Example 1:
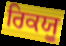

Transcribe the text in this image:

ਰਿਕਯੂ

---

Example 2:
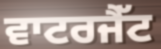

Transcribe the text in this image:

ਵਾਟਰਜੈੱਟ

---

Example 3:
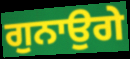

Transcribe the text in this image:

ਗੁਨਾਉਗੇ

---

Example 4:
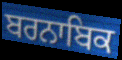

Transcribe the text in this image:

ਬਰਨਾਬਿਕ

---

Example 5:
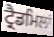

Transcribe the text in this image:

ਟ੍ਰੈਡਮਿਲਾਂ